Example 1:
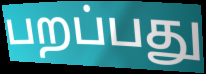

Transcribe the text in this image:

பறப்பது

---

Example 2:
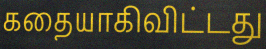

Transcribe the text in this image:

கதையாகிவிட்டது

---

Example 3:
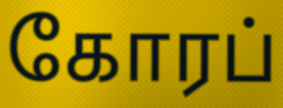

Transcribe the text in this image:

கோரப்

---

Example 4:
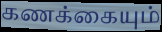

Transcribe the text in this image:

கணக்கையும்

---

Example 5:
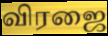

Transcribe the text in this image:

விரஜை